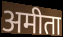
अमीता